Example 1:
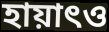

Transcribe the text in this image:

হায়াৎও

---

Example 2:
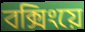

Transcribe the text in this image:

বক্সিংয়ে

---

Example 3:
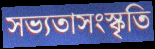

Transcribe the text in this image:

সভ্যতাসংস্কৃতি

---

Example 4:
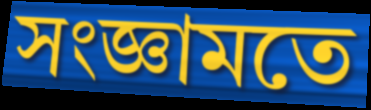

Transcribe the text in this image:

সংজ্ঞামতে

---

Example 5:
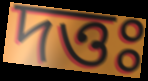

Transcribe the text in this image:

দত্তঃ